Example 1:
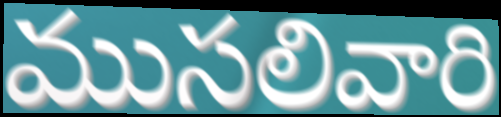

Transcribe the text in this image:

ముసలివారి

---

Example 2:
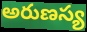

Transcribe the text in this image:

అరుణస్య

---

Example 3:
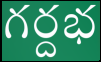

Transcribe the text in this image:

గర్దభ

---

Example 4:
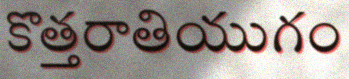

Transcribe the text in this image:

కొత్తరాతియుగం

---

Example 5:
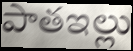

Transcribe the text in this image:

పాతఇల్లు